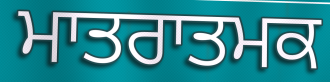
ਮਾਤਰਾਤਮਕ